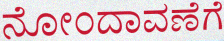
ನೋಂದಾವಣೆಗೆ